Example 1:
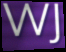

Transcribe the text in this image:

WJ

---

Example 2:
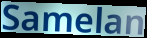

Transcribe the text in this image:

Samelan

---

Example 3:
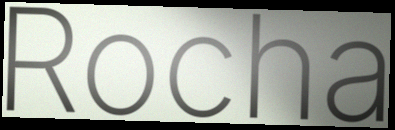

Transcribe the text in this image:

Rocha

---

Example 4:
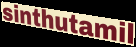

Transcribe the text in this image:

sinthutamil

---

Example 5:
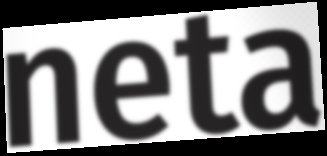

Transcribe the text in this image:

neta